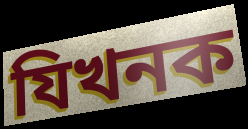
যিখনক